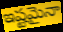
ఇష్టమైనా